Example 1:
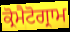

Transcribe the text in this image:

ਕ੍ਰੋਮੈਟੋਗ੍ਰਾਮ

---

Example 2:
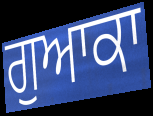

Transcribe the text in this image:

ਗੁਆਕਾ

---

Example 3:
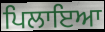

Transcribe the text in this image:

ਪਿਲਾਇਆ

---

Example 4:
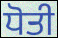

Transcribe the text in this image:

ਧੋਤੀ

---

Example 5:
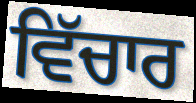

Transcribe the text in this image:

ਵਿੱਚਾਰ